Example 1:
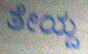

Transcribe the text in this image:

ತೇಯ್ದ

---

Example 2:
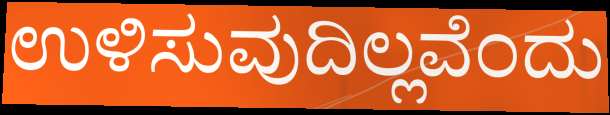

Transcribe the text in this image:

ಉಳಿಸುವುದಿಲ್ಲವೆಂದು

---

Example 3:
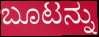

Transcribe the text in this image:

ಬೂಟನ್ನು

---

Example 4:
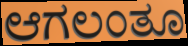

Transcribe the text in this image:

ಆಗಲಂತೂ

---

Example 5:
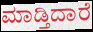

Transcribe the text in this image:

ಮಾಡ್ತಿದಾರೆ